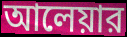
আলেয়ার